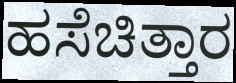
ಹಸೆಚಿತ್ತಾರ